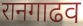
रानगाढव